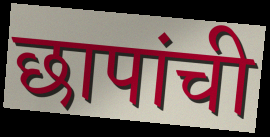
छापांची